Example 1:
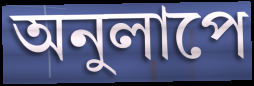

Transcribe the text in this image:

অনুলাপে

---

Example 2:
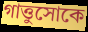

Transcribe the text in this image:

গাত্তুসোকে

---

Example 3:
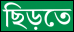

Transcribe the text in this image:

ছিড়তে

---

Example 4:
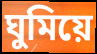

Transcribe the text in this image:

ঘুমিয়ে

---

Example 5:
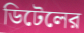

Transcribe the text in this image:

ডিটেলের